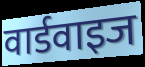
वार्डवाइज